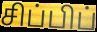
சிப்பிப்